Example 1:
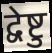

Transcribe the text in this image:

द्वेष्टु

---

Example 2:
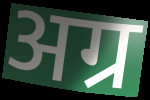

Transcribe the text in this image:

अग्र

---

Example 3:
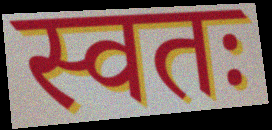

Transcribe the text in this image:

स्वतः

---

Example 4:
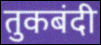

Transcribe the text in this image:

तुकबंदी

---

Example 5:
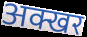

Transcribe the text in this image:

अक्खर